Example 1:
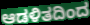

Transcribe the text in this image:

ಆಡಳಿತದಿಂದ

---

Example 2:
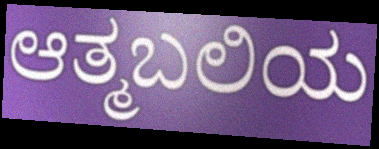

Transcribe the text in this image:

ಆತ್ಮಬಲಿಯ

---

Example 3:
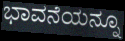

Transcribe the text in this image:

ಭಾವನೆಯನ್ನೂ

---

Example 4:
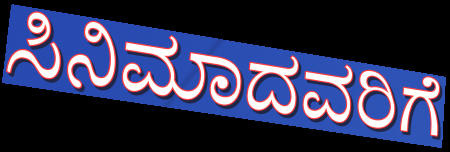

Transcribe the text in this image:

ಸಿನಿಮಾದವರಿಗೆ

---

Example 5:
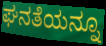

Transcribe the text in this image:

ಘನತೆಯನ್ನೂ